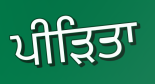
ਪੀੜਿਤਾ